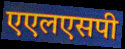
एएलएसपी